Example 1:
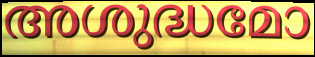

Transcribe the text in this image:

അശുദ്ധമോ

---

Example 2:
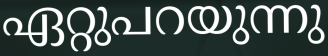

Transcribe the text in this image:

ഏറ്റുപറയുന്നു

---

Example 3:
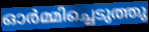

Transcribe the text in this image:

ഓർമ്മിച്ചെടുത്തു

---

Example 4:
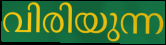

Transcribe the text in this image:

വിരിയുന്ന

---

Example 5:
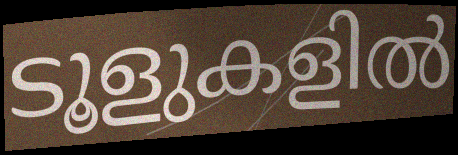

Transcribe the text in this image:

ടൂളുകളിൽ